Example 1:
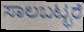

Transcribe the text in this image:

ಸಾಲಬಟ್ಟರೆ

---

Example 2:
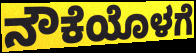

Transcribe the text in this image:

ನೌಕೆಯೊಳಗೆ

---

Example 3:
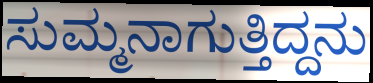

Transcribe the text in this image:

ಸುಮ್ಮನಾಗುತ್ತಿದ್ದನು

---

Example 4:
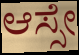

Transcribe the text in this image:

ಆಸ್ಸೇ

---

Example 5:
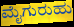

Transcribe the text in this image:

ಮೈಗುರುಹು